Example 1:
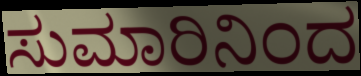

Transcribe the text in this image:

ಸುಮಾರಿನಿಂದ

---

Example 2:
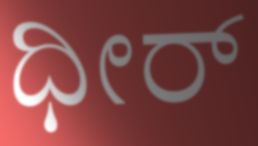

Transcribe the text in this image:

ಧೀರ್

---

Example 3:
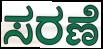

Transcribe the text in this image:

ಸರಣೆ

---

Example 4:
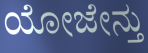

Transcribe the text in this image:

ಯೋಜೇನ್ತು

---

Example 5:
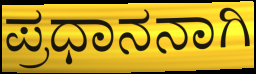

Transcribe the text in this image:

ಪ್ರಧಾನನಾಗಿ